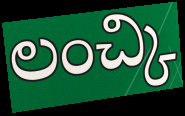
లంచ్కి